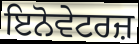
ਇਨੋਵੇਟਰਜ਼